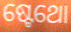
ଷ୍ଟେଥୋ